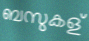
ബസുകള്